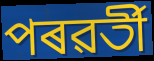
পৰৱৰ্তী